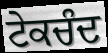
ਟੇਕਚੰਦ